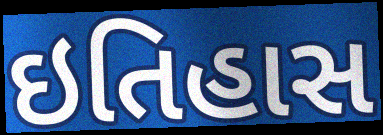
ઇતિહાસ